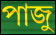
পাজু